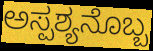
ಅಸ್ಪಶ್ಯನೊಬ್ಬ